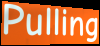
Pulling